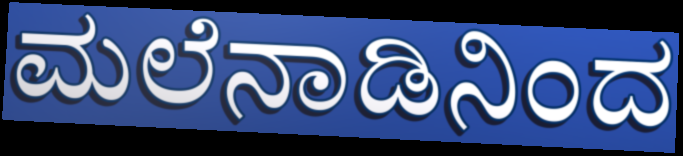
ಮಲೆನಾಡಿನಿಂದ